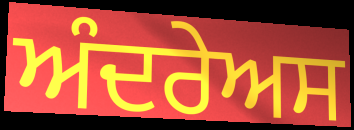
ਅੰਦਰੇਅਸ